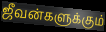
ஜீவன்களுக்கும்